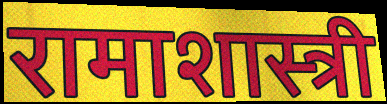
रामाशास्त्री